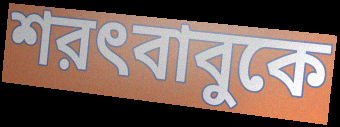
শরৎবাবুকে